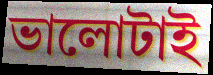
ভালোটাই